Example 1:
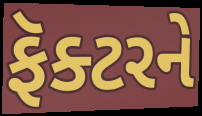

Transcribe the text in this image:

ફૅક્ટરને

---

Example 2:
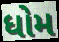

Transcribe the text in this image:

ધોમ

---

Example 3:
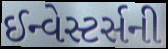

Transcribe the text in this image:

ઈન્વેસ્ટર્સની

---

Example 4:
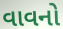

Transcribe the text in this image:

વાવનો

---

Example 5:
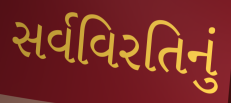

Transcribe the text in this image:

સર્વવિરતિનું